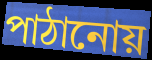
পাঠানোয়